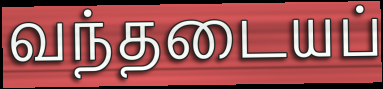
வந்தடையப்